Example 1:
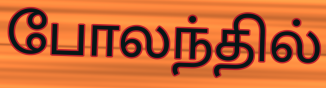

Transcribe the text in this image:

போலந்தில்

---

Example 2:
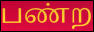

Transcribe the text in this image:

பண்ற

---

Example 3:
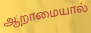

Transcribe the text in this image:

ஆறாமையால்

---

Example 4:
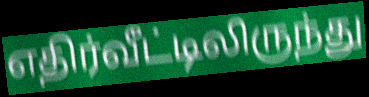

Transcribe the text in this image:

எதிர்வீட்டிலிருந்து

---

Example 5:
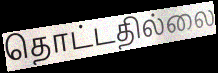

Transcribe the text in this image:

தொட்டதில்லை